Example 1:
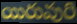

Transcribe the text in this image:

యిరువురి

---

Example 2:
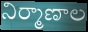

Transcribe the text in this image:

నిర్మాణాల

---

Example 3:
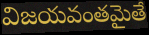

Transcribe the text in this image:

విజయవంతమైతే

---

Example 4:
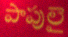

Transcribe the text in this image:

పాపులై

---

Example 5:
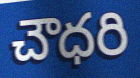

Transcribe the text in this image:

చౌధరి